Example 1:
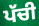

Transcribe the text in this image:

ਪੱਚੀ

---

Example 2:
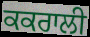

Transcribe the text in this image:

ਕਕਰਾਲੀ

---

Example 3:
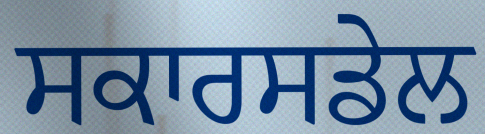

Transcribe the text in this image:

ਸਕਾਰਸਡੇਲ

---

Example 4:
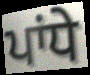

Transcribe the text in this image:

ਪਾਂਧੇ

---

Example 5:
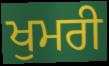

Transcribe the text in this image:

ਖੁਮਰੀ